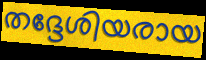
തദ്ദേശിയരായ